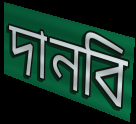
দানবি